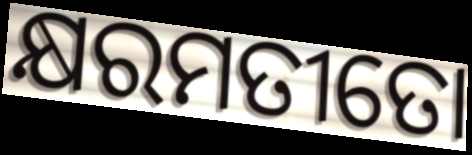
କ୍ଷରମତୀତୋ